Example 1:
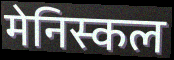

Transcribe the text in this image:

मेनिस्कल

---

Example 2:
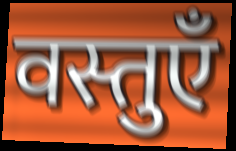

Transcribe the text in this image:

वस्‍तुएँ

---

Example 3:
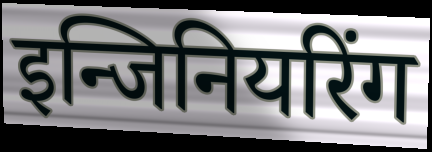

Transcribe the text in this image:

इन्जिनियरिंग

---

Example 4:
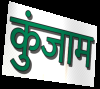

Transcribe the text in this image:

कुंजाम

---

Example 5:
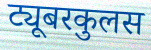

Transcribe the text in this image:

ट्यूबरकुलस